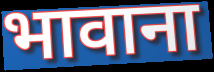
भावाना